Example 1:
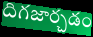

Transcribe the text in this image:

దిగజార్చడం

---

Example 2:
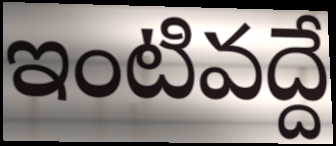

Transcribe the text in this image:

ఇంటివద్దే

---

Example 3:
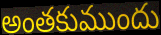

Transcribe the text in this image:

అంతకుముందు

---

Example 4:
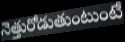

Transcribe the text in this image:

నెత్తురోడుతుంటుంటే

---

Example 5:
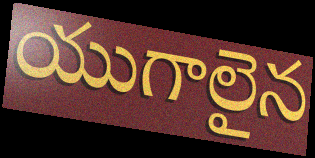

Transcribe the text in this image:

యుగాలైన